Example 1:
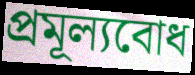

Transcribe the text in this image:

প্ৰমূল্যবোধ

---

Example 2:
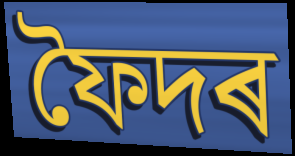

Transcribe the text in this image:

ফৈদৰ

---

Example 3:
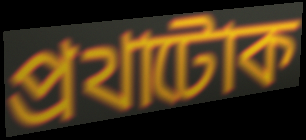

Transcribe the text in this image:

প্ৰথাটোক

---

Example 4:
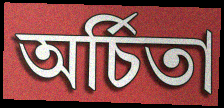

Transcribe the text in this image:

অৰ্চিতা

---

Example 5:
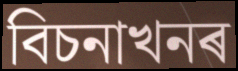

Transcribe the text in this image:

বিচনাখনৰ